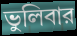
ভুলিবার